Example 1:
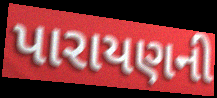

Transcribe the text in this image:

પારાયણની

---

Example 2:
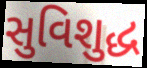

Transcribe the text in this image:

સુવિશુદ્ધ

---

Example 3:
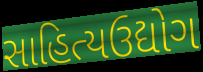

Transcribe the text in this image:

સાહિત્યઉદ્યોગ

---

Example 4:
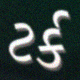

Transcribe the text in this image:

ટર્ક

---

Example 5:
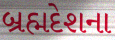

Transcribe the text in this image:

બ્રહ્મદેશના